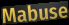
Mabuse